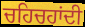
ਚਹਿਚਹਾਂਦੀ